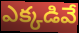
ఎక్కడివే